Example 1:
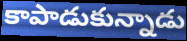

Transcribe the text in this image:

కాపాడుకున్నాడు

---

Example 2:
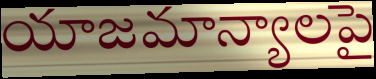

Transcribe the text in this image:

యాజమాన్యాలపై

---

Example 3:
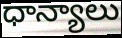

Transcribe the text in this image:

ధాన్యాలు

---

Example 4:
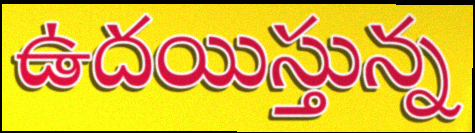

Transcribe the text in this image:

ఉదయిస్తున్న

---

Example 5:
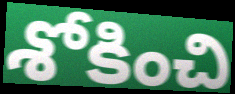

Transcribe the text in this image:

శోకించి